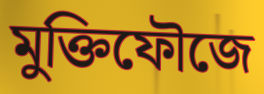
মুক্তিফৌজে